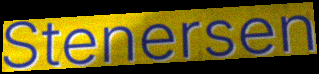
Stenersen